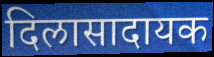
दिलासादायक